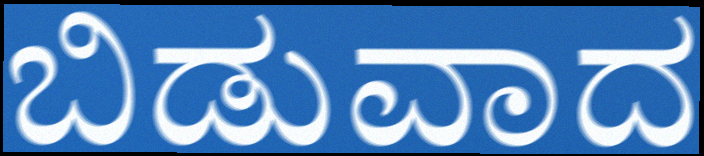
ಬಿಡುವಾದ